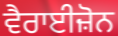
ਵੈਰਾਈਜ਼ੋਨ